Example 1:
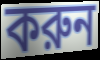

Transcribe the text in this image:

করুন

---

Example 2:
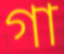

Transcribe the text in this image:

গা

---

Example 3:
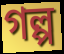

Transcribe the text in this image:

গল্প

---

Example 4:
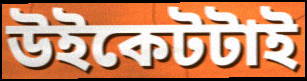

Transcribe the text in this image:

উইকেটটাই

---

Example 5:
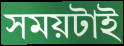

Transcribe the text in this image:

সময়টাই